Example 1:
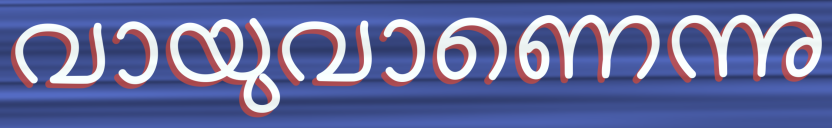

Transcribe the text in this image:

വായുവാണെന്നു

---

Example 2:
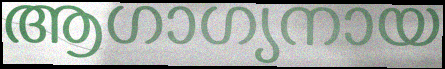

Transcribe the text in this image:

ആഗാഗ്യനായ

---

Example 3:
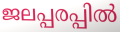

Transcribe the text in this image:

ജലപ്പരപ്പിൽ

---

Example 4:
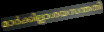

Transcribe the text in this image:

മാർക്കില്ലാശയസന്തതി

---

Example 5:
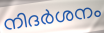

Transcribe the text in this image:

നിദർശനം